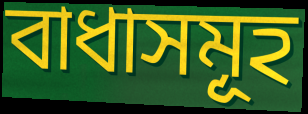
বাধাসমূহ